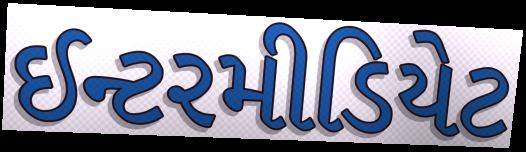
ઈન્ટરમીડિયેટ